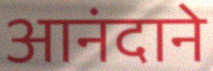
आनंदाने